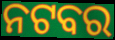
ନଟବର